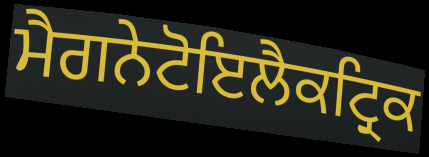
ਮੈਗਨੇਟੋਇਲੈਕਟ੍ਰਿਕ